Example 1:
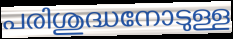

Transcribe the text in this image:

പരിശുദ്ധനോടുള്ള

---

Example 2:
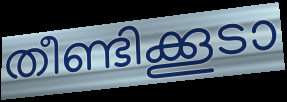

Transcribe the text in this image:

തീണ്ടിക്കൂടാ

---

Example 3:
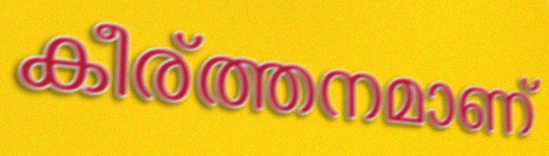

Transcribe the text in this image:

കീര്ത്തനമാണ്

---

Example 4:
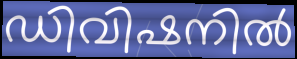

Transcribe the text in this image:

ഡിവിഷനിൽ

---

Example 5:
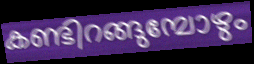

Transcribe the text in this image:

കണ്ടിറങ്ങുമ്പോഴും